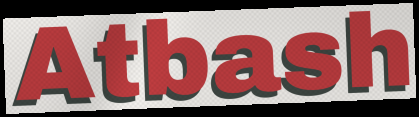
Atbash